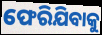
ଫେରିଯିବାକୁ